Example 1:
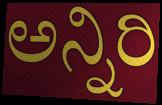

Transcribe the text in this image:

ಅನ್ನಿರಿ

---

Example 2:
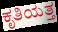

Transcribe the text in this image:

ಕೃತಿಯತ್ತ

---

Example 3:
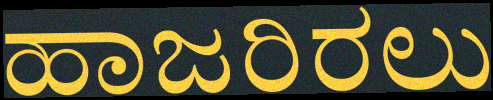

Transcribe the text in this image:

ಹಾಜರಿರಲು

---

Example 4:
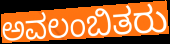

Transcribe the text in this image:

ಅವಲಂಬಿತರು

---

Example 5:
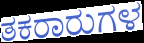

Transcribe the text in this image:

ತಕರಾರುಗಳ